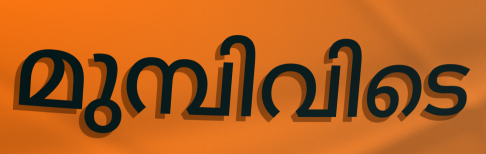
മുമ്പിവിടെ